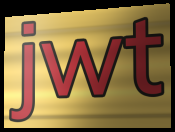
jwt